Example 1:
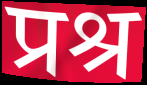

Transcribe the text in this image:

प्रश्र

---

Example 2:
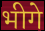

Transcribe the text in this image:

भीगे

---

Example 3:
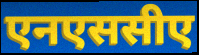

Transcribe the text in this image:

एनएससीए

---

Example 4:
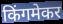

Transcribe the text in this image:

किंगमेकर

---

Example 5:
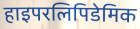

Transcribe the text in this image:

हाइपरलिपिडेमिक